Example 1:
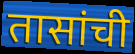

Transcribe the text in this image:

तासांची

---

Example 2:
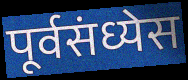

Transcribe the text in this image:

पूर्वसंध्येस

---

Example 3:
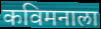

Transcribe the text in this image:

कविमनाला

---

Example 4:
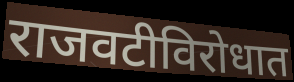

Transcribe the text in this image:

राजवटीविरोधात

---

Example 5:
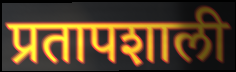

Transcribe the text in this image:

प्रतापशाली